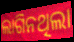
ଲାଗିନଥିଲା